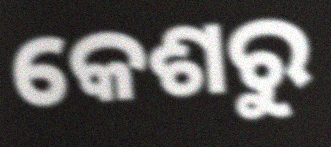
କେଶରୁ